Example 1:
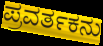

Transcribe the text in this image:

ಪ್ರವರ್ತಕನು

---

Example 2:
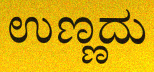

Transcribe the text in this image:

ಉಣ್ಣದು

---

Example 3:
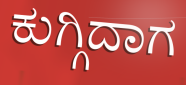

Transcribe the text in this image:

ಕುಗ್ಗಿದಾಗ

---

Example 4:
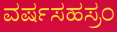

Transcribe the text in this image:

ವರ್ಷಸಹಸ್ರಂ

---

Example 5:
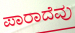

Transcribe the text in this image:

ಪಾರಾದೆವು